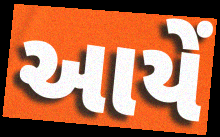
આયેં